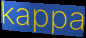
kappa